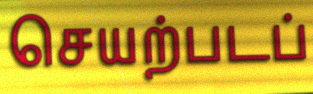
செயற்படப்